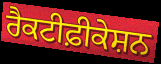
ਰੈਕਟੀਫ਼ੀਕੇਸ਼ਨ